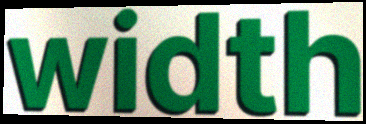
width